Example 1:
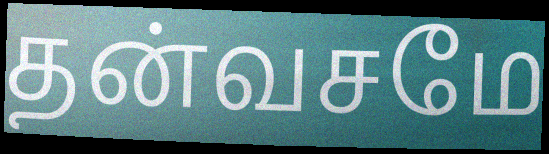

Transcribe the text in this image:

தன்வசமே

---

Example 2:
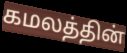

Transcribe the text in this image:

கமலத்தின்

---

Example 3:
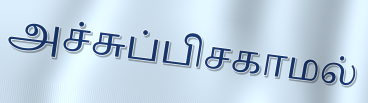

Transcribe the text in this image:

அச்சுப்பிசகாமல்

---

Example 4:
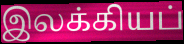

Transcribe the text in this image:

இலக்கியப்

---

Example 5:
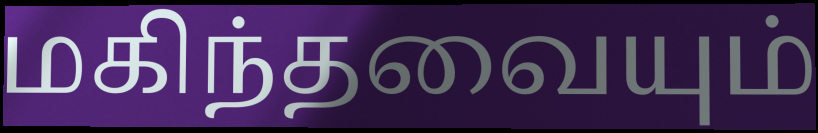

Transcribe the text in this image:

மகிந்தவையும்